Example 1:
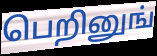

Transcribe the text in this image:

பெறினுங்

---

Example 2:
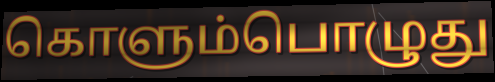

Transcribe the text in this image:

கொளும்பொழுது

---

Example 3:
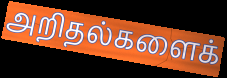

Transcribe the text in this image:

அறிதல்களைக்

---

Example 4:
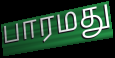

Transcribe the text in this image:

பாரமது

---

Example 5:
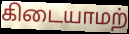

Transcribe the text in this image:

கிடையாமற்